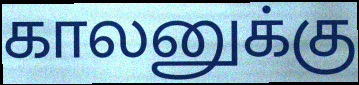
காலனுக்கு